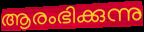
ആരംഭിക്കുന്നു